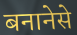
बनानेसे